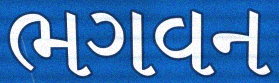
ભગવન